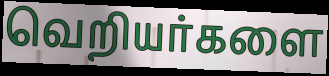
வெறியர்களை